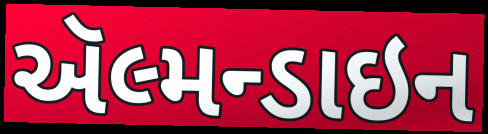
ઍલ્મન્ડાઇન